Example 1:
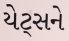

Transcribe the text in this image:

યેટ્સને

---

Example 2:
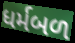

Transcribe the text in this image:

ધર્મબળ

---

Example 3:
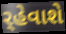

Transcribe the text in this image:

ર્‌હેવાશે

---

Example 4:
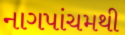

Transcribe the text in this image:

નાગપાંચમથી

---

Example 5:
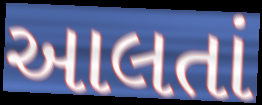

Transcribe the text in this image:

આલતાં